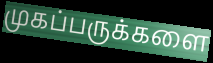
முகப்பருக்களை